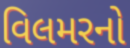
વિલમરનો